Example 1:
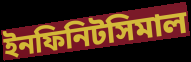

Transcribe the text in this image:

ইনফিনিটসিমাল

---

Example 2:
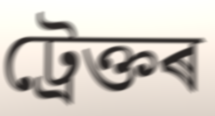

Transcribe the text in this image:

ট্ৰেক্তৰ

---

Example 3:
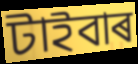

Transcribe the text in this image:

টাইবাৰ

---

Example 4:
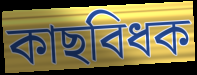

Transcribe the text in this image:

কাছবিধক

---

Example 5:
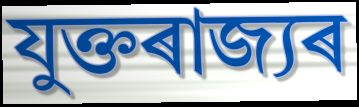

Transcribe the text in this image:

যুক্তৰাজ্যৰ